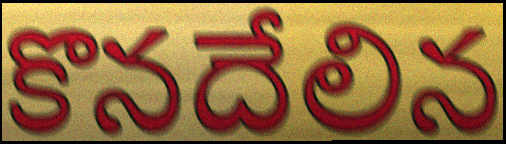
కొనదేలిన